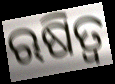
ଋଷିତ୍ୱ